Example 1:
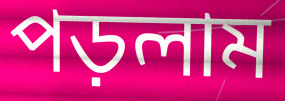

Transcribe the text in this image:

পড়লাম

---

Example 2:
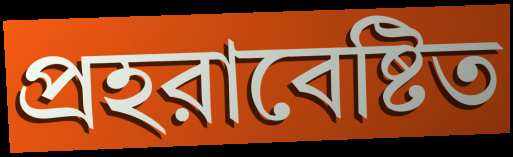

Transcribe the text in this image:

প্রহরাবেষ্টিত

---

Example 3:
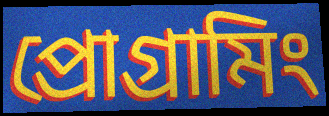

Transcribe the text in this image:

প্রোগ্রামিং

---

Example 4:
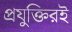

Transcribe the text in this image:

প্রযুক্তিরই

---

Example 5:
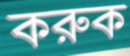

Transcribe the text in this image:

করুক